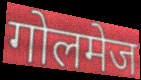
गोलमेज